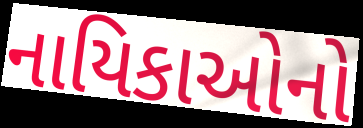
નાયિકાઓનો